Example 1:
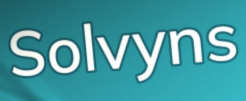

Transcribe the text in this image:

Solvyns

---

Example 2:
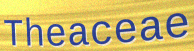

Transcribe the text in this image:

Theaceae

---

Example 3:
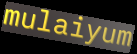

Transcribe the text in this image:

mulaiyum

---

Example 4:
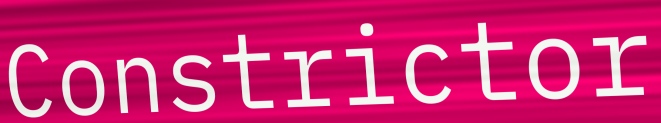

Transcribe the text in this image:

Constrictor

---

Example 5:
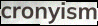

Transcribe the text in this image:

cronyism